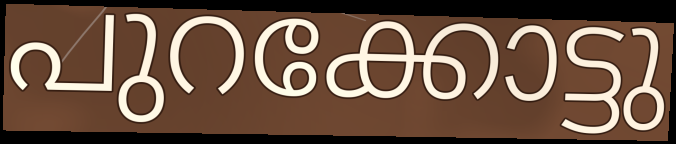
പുറക്കോട്ടു